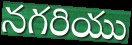
నగరియు